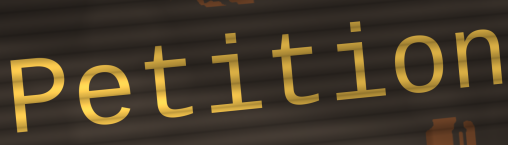
Petition